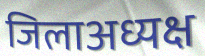
जिलाअध्यक्ष